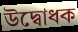
উদ্বোধক